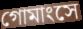
গোমাংসে